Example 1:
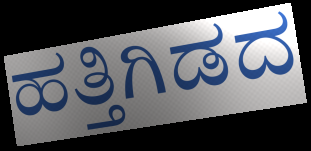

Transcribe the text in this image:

ಹತ್ತಿಗಿಡದ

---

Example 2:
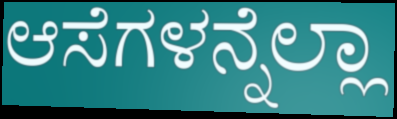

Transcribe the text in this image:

ಆಸೆಗಳನ್ನೆಲ್ಲಾ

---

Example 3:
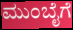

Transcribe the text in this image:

ಮುಂಬೈಗೆ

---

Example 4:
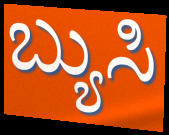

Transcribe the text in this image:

ಬ್ಯುಸಿ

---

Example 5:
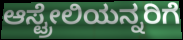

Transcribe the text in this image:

ಆಸ್ಟ್ರೇಲಿಯನ್ನರಿಗೆ